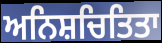
ਅਨਿਸ਼ਚਿਤਿਤਾ